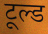
टूल्ड